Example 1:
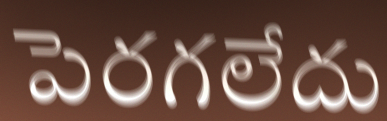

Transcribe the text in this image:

పెరగలేదు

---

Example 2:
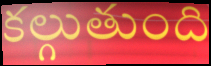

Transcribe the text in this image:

కల్గుతుంది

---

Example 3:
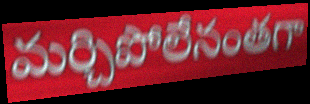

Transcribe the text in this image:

మర్చిపోలేనంతగా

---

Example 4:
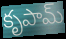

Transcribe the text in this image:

కృపామ్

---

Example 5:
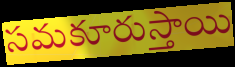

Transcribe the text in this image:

సమకూరుస్తాయి